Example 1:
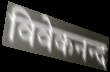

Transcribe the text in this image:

विवेकनन्द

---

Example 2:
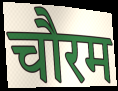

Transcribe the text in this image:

चौरम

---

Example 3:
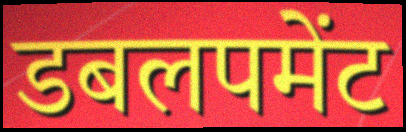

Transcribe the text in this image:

डबलपमेंट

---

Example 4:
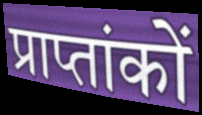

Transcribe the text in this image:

प्राप्तांकों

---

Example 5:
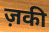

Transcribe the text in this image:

ज़की